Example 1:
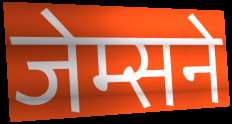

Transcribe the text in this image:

जेम्सने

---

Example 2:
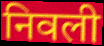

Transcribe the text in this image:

निवली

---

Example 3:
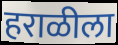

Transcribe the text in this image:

हराळीला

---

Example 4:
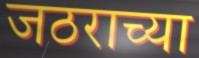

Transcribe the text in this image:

जठराच्या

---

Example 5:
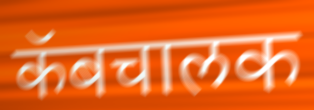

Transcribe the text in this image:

कॅबचालक